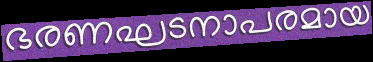
ഭരണഘടനാപരമായ